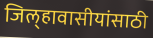
जिल्हावासीयांसाठी